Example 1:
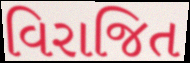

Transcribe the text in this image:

વિરાજિત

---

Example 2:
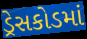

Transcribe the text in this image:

ડ્રેસકોડમાં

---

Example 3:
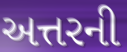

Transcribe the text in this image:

અત્તરની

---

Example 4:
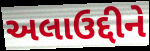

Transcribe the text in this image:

અલાઉદ્દીને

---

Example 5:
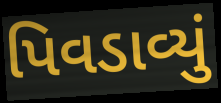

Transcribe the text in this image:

પિવડાવ્યું